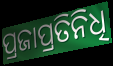
ପ୍ରଜାପ୍ରତିନିଧି